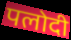
पलोदी